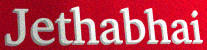
Jethabhai